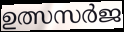
ഉത്സസർജ